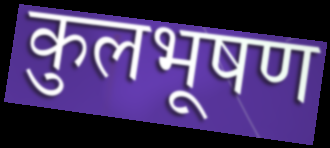
कुलभूषण